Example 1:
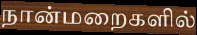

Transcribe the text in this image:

நான்மறைகளில்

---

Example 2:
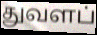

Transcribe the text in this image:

துவளப்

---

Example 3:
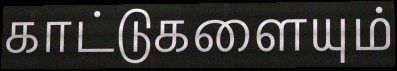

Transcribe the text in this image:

காட்டுகளையும்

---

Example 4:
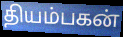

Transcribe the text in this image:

தியம்பகன்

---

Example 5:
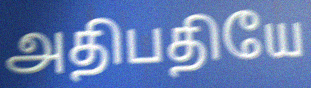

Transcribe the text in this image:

அதிபதியே